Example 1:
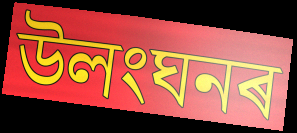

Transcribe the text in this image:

উলংঘনৰ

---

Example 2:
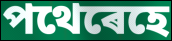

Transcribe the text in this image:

পথেৰেহে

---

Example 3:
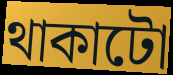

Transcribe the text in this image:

থাকাটো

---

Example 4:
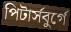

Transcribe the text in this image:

পিটাৰ্সবুৰ্গে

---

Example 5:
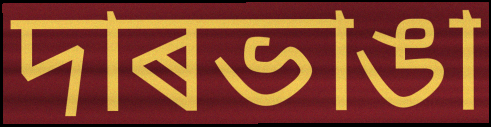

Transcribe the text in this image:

দাৰভাঙা